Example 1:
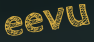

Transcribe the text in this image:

eevu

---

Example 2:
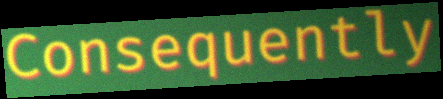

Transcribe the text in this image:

Consequently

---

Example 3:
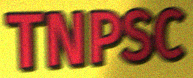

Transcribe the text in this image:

TNPSC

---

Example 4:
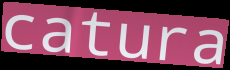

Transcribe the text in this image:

catura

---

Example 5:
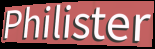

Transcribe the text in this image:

Philister